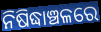
ନିଷିଦ୍ଧାଞ୍ଚଳରେ